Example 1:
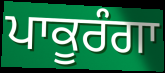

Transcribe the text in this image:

ਪਾਕੂਰੰਗਾ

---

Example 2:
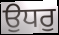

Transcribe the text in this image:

ਉਧਰੁ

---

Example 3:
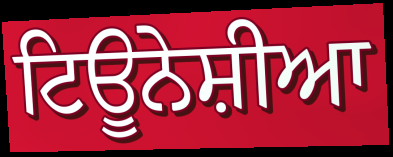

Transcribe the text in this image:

ਟਿਊਨੇਸ਼ੀਆ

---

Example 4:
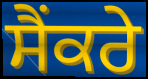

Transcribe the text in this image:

ਸੈਂਕਰੇ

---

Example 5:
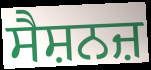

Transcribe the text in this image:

ਸੈਸ਼ਨਜ਼